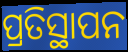
ପ୍ରତିସ୍ଥାପନ